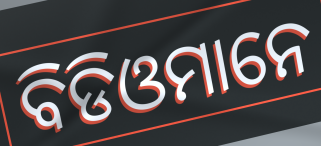
ବିଡିଓମାନେ